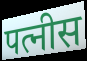
पत्‍नीस